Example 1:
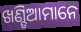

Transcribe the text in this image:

ଖଣ୍ଡିଆମାନେ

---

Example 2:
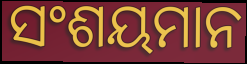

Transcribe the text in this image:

ସଂଶୟମାନ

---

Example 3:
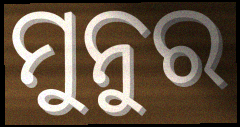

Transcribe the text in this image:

ମୁନୁର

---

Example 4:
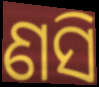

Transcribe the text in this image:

ଣସି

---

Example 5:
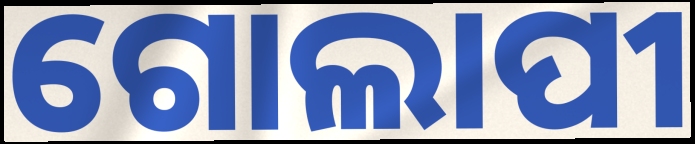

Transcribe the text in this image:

ଗୋଲାପୀ